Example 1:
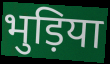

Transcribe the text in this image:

भुड़िया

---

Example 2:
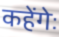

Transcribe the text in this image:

कहेंगेः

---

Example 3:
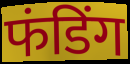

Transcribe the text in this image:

फंडिंग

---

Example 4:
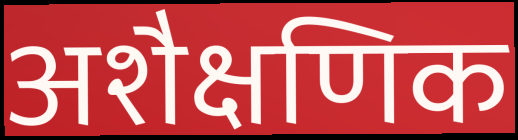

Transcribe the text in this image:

अशैक्षणिक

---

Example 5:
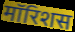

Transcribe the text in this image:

मॉरिशस